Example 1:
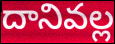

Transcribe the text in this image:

దానివల్ల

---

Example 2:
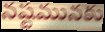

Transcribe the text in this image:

నష్టమునకు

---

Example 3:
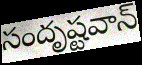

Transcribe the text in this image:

సందృష్టవాన్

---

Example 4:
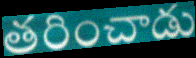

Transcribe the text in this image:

తరించాడు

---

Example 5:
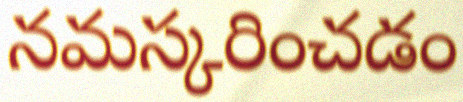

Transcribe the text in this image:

నమస్కరించడం